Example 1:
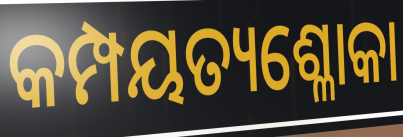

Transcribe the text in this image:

କମ୍ପୟତ୍ୟଶ୍ଳୋକା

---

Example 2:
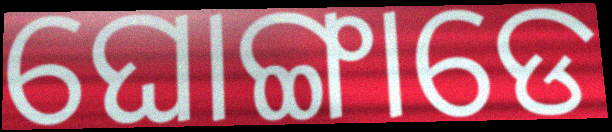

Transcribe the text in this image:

ଘୋଙ୍ଗାଡେ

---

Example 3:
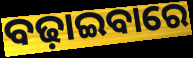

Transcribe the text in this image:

ବଢ଼ାଇବାରେ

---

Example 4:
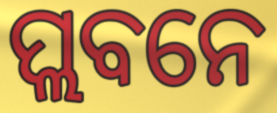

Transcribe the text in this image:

ପ୍ଲବନେ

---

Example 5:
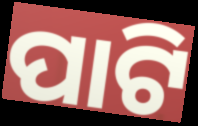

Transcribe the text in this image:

ପାଟି